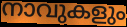
നാവുകളും